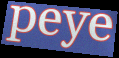
peye